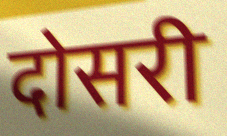
दोसरी